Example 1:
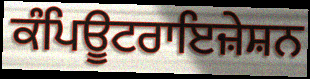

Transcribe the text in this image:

ਕੰਪਿਊਟਰਾਇਜ਼ੇਸ਼ਨ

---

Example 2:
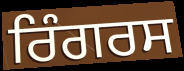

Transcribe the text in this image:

ਰਿੰਗਰਸ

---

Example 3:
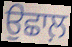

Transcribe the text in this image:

ਉਛਾਲ਼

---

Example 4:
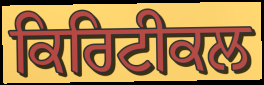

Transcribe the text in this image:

ਕਿਰਿਟੀਕਲ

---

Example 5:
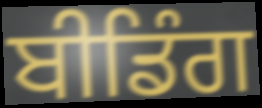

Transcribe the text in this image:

ਬੀਡਿੰਗ